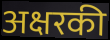
अक्षरकी